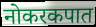
नोकरकपात